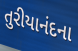
તુરીયાનંદના